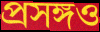
প্রসঙ্গও